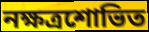
নক্ষত্রশোভিত